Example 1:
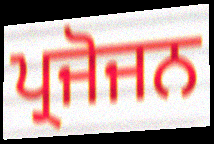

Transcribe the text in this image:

ਪ੍ਰਜੋਜਨ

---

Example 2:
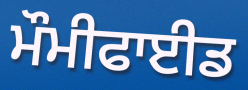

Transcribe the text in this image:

ਮੌਮੀਫਾਈਡ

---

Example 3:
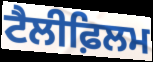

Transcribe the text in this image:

ਟੈਲੀਫ਼ਿਲਮ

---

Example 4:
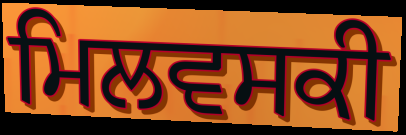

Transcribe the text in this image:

ਮਿਲਵਸਕੀ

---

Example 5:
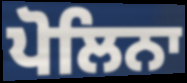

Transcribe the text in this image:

ਪੋਲਿਨਾ